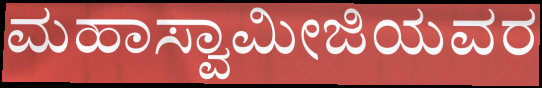
ಮಹಾಸ್ವಾಮೀಜಿಯವರ